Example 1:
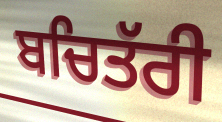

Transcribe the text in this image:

ਬਚਿਤੱਰੀ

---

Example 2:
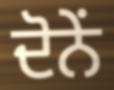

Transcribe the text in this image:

ਦੋਨੇਂ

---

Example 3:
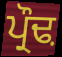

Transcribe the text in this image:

ਪ੍ਰੌਢ਼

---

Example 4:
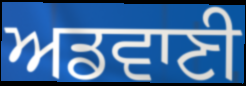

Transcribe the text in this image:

ਅਡਵਾਣੀ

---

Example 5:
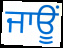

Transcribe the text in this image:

ਜਾਊਂ